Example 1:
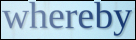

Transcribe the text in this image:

whereby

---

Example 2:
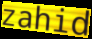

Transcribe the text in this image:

zahid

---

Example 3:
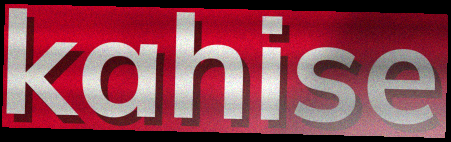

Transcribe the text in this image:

kahise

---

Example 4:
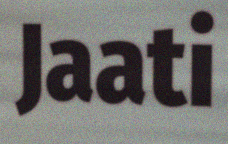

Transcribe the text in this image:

Jaati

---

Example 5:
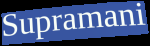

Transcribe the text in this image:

Supramani